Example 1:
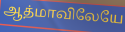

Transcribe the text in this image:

ஆத்மாவிலேயே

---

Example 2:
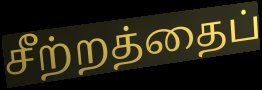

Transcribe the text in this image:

சீற்றத்தைப்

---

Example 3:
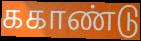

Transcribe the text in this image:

ககாண்டு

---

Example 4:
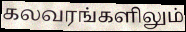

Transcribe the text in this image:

கலவரங்களிலும்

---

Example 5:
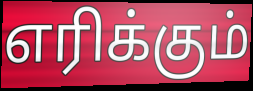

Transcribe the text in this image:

எரிக்கும்